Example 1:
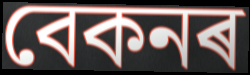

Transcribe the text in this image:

বেকনৰ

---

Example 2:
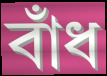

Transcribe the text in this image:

বাঁধ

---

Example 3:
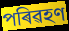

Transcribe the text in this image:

পৰিৱহণ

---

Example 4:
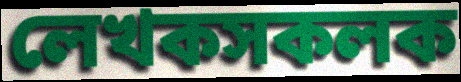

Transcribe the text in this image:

লেখকসকলক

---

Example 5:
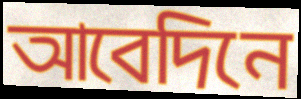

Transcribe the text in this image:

আবেদিনে